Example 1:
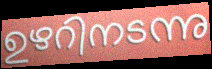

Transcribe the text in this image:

ഉഴറിനടന്നു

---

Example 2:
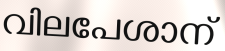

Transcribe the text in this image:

വിലപേശാന്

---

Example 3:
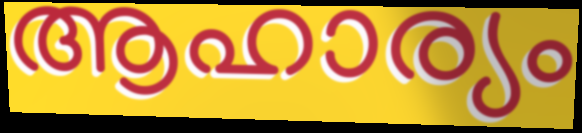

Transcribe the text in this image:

ആഹാര്യം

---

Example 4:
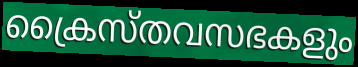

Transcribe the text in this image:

ക്രൈസ്തവസഭകളും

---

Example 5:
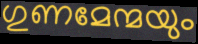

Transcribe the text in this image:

ഗുണമേന്മയും